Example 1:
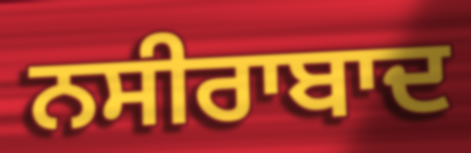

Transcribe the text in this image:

ਨਸੀਰਾਬਾਦ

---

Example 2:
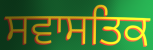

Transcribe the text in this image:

ਸਵਾਸਤਿਕ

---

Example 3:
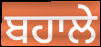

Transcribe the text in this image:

ਬਹਾਲੇ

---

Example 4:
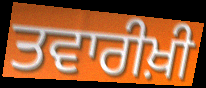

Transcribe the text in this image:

ਤਵਾਰੀਖ਼ੀ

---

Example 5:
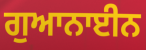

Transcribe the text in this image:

ਗੁਆਨਾਈਨ